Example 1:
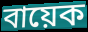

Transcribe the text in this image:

বায়েক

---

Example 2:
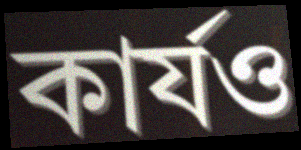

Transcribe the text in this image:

কাৰ্যও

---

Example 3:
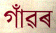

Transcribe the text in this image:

গাঁৱৰ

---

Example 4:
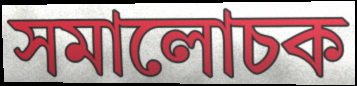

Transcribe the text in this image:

সমালোচক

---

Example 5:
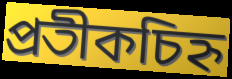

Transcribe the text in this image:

প্ৰতীকচিহ্ন